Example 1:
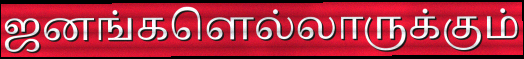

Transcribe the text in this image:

ஜனங்களெல்லாருக்கும்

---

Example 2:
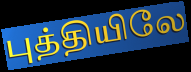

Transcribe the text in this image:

புத்தியிலே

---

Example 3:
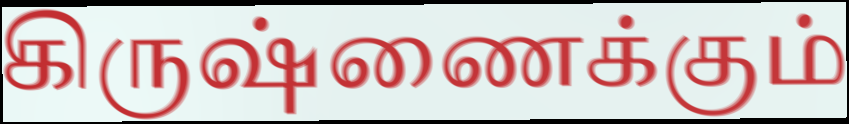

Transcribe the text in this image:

கிருஷ்ணைக்கும்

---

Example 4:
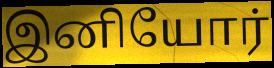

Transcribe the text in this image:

இனியோர்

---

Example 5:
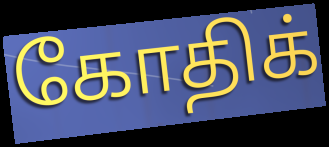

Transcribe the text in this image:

கோதிக்